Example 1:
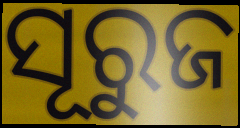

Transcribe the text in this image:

ସୂରୁଜ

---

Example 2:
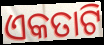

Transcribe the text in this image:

ଏକତାଟି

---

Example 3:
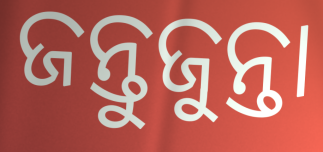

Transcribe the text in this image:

ଜନ୍ତୁଜୁନ୍ତା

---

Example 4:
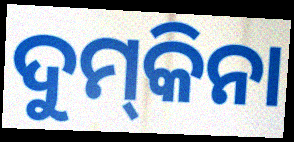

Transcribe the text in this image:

ଦୁମ୍‌କିନା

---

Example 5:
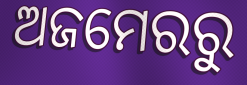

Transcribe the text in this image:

ଅଜମେରରୁ